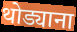
थोड्याना